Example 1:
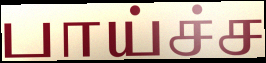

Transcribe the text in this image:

பாய்ச்ச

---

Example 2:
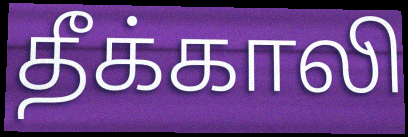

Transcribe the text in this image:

தீக்காலி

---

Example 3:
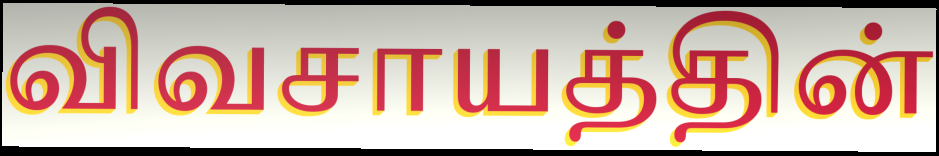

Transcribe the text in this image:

விவசாயத்தின்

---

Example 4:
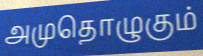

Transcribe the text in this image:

அமுதொழுகும்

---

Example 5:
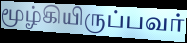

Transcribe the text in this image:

மூழ்கியிருப்பவர்